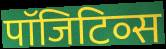
पॉजिटिव्स